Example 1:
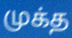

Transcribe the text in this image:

முக்த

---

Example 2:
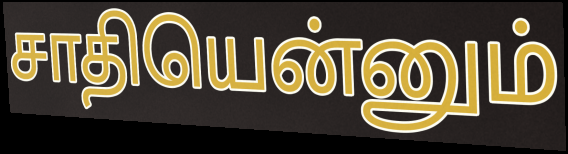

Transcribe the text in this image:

சாதியென்னும்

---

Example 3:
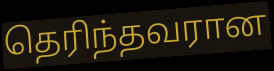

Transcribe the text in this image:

தெரிந்தவரான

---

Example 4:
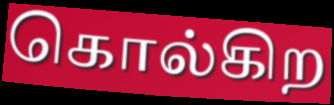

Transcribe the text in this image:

கொல்கிற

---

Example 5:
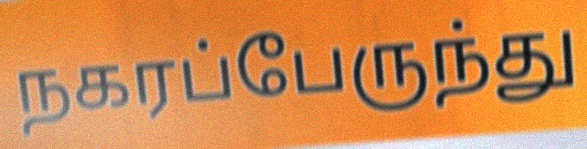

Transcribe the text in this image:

நகரப்பேருந்து